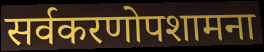
सर्वकरणोपशामना